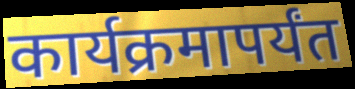
कार्यक्रमापर्यंत